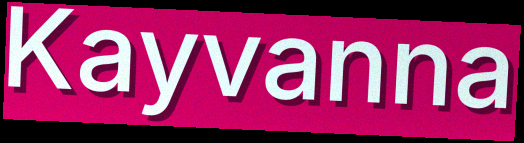
Kayvanna